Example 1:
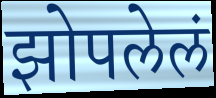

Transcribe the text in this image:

झोपलेलं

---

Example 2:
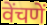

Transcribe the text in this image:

वेंचणें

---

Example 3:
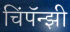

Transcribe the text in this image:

चिंपॅन्झी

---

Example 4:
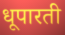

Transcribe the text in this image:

धूपारती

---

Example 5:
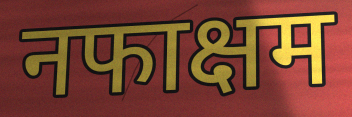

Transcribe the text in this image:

नफाक्षम